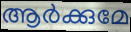
ആർക്കുമേ